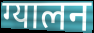
ग्यालन